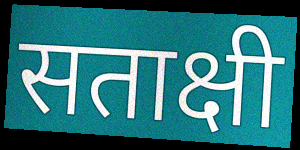
सताक्षी